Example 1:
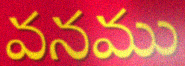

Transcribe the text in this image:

వనము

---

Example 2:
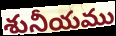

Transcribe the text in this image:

శునీయము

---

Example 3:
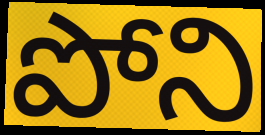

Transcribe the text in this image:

పోని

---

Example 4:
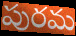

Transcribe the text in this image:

పురమ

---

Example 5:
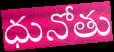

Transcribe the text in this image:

ధునోతు